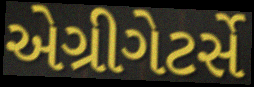
એગ્રીગેટર્સે